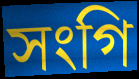
সংগি